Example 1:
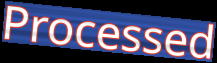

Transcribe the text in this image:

Processed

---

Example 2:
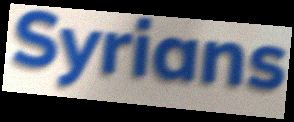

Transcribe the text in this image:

Syrians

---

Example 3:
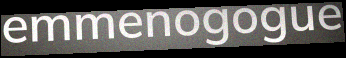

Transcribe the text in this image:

emmenogogue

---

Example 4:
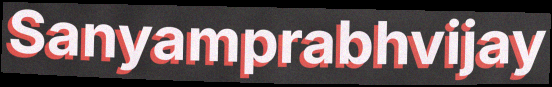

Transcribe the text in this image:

Sanyamprabhvijay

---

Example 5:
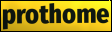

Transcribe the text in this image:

prothome